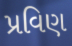
પ્રવિણ